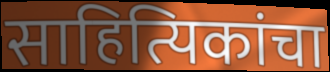
साहित्यिकांचा